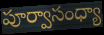
పూర్వాసంధ్యా